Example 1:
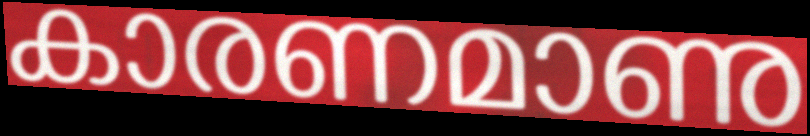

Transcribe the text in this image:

കാരണമാണു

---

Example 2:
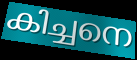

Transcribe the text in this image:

കിച്ചനെ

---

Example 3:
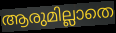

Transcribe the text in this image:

ആരുമില്ലാതെ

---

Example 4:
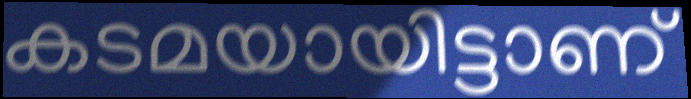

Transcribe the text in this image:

കടമയായിട്ടാണ്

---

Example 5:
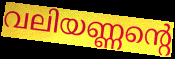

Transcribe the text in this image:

വലിയണ്ണന്റെ